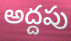
అద్దపు